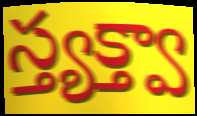
స్త్యక్త్వా